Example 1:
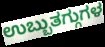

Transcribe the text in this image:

ಉಬ್ಬುತಗ್ಗುಗಳ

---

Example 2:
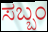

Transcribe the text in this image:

ಸಬ್ಬಂ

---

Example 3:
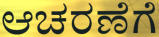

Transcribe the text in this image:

ಆಚರಣೆಗೆ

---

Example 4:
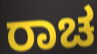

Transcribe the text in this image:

ರಾಚ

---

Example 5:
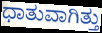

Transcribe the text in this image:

ಧಾತುವಾಗಿತ್ತು